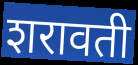
शरावती